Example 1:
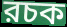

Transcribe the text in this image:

রচক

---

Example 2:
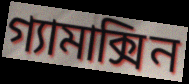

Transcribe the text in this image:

গ্যামাক্সিন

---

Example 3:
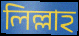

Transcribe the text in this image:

লিল্লাহ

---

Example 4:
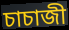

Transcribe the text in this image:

চাচাজী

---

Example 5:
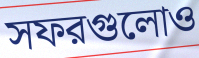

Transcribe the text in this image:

সফরগুলোও